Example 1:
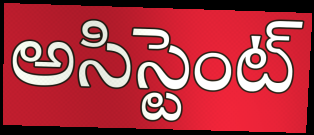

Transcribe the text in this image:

అసిస్టెంట్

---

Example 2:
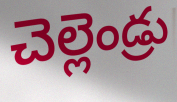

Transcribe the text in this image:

చెల్లెండ్రు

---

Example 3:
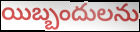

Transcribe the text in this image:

యిబ్బందులను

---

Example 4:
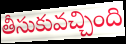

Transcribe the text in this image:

తీసుకువచ్చింది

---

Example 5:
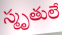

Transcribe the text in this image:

స్మృతులే